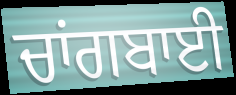
ਚਾਂਗਬਾਈ